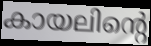
കായലിന്റെ